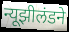
न्यूझीलंडने